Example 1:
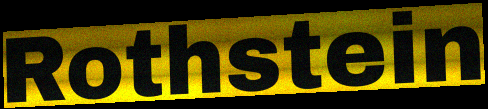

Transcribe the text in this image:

Rothstein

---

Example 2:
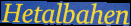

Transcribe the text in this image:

Hetalbahen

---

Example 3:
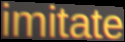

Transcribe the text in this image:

imitate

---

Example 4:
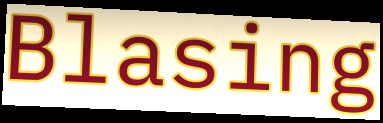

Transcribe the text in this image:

Blasing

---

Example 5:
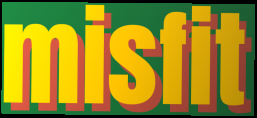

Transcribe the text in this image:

misfit